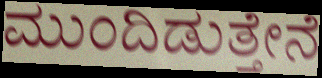
ಮುಂದಿಡುತ್ತೇನೆ